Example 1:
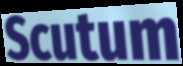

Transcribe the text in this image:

Scutum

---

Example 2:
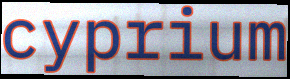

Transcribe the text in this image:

cyprium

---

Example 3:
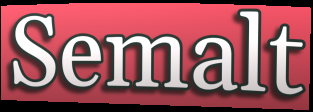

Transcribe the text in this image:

Semalt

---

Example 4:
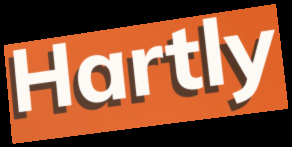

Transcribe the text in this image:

Hartly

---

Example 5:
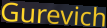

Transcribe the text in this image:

Gurevich